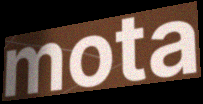
mota